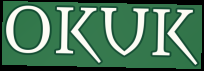
OKUK